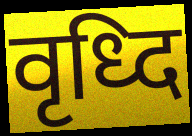
वृध्दि